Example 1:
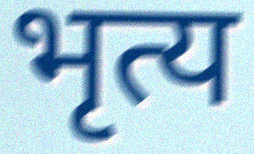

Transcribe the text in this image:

भृत्य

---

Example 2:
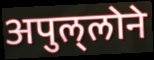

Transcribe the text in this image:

अपुल्लोने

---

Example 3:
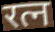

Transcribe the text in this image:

रत्न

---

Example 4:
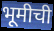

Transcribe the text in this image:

भूमीची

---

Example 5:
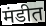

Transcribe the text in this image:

मंडीत